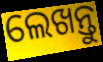
ଲେଖନ୍ତୁ